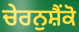
ਚੇਰਨੁਸ਼ੈਂਕੋ